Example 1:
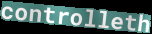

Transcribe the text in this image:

controlleth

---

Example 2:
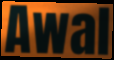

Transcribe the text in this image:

Awal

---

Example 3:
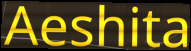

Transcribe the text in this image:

Aeshita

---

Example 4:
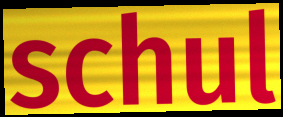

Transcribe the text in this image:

schul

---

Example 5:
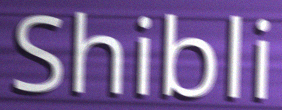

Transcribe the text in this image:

Shibli